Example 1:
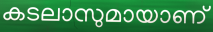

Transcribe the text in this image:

കടലാസുമായാണ്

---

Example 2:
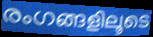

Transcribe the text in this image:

രംഗങ്ങളിലൂടെ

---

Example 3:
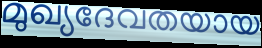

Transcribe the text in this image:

മുഖ്യദേവതയായ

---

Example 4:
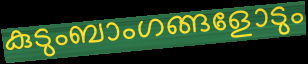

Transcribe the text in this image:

കുടുംബാംഗങ്ങളോടും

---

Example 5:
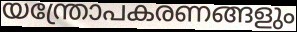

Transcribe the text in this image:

യന്ത്രോപകരണങ്ങളും